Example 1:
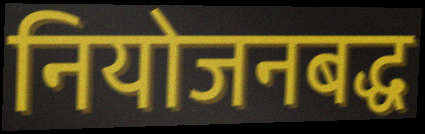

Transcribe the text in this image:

नियोजनबद्ध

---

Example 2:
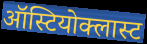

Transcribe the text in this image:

ऑस्टियोक्लास्ट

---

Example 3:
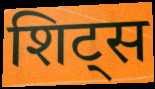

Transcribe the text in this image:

शिट्स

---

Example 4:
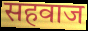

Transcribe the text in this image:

सहवाज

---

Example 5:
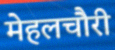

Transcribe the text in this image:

मेहलचौरी